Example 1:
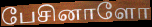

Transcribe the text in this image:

பேசினாளோ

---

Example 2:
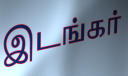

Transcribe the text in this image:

இடங்கர்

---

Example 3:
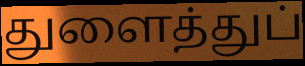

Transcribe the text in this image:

துளைத்துப்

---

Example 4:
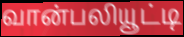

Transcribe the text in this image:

வான்பலியூட்டி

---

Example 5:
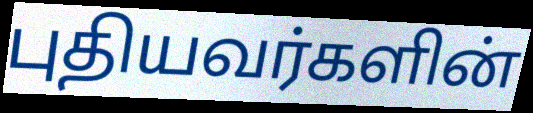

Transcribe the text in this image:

புதியவர்களின்